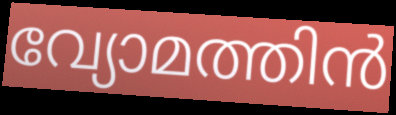
വ്യോമത്തിൻ